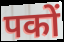
पकों